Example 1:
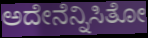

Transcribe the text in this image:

ಅದೇನೆನ್ನಿಸಿತೋ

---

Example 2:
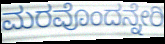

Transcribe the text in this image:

ಮರವೊಂದನ್ನೇರಿ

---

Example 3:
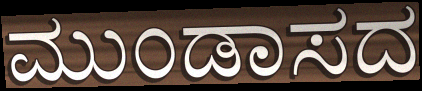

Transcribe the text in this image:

ಮುಂಡಾಸದ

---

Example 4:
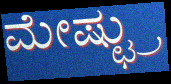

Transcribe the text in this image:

ಮೇಷ್ಟ್ರು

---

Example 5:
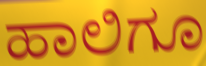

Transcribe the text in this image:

ಹಾಲಿಗೂ